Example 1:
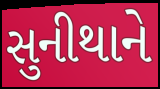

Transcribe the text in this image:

સુનીથાને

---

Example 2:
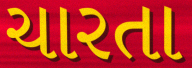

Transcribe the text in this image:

ચારતા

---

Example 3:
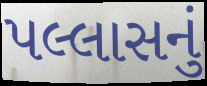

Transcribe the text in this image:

પલ્લાસનું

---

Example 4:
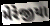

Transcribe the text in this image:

મેરેજીયા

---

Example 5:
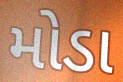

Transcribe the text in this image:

મોડા